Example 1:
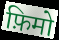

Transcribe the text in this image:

फ़िमो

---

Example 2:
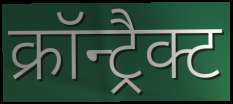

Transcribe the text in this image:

क्रॉन्ट्रैक्ट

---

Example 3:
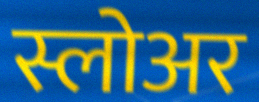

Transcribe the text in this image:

स्लोअर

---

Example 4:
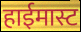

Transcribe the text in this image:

हाईमास्ट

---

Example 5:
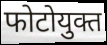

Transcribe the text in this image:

फोटोयुक्त